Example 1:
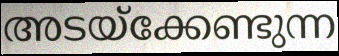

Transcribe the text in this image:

അടയ്ക്കേണ്ടുന്ന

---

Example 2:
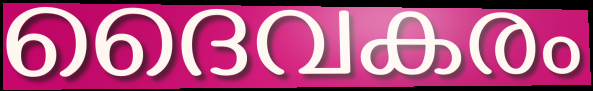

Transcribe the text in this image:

ദൈവകരം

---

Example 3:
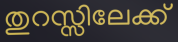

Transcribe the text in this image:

തുറസ്സിലേക്ക്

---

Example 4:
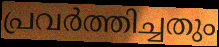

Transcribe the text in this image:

പ്രവർത്തിച്ചതും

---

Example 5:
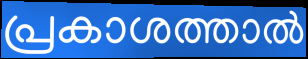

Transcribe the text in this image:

പ്രകാശത്താൽ